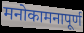
मनोकामनापूर्ण